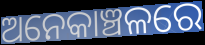
ଅନେକାଞ୍ଚଳରେ